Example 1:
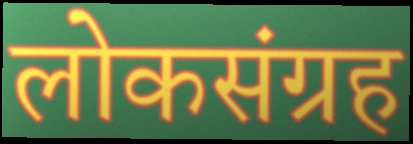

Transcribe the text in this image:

लोकसंग्रह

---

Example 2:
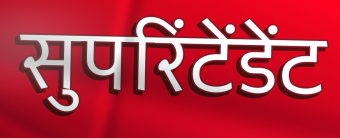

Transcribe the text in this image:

सुपरिंटेंडेंट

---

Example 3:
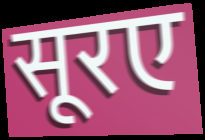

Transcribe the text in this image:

सूरए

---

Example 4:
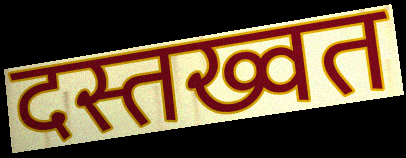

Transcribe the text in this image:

दस्तख्वत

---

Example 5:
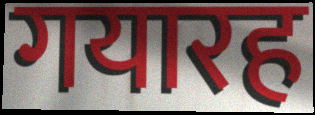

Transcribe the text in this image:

गयारह